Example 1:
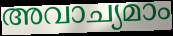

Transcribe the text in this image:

അവാച്യമാം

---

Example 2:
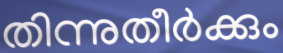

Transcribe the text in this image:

തിന്നുതീർക്കും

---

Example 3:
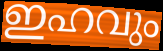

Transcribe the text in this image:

ഇഹവും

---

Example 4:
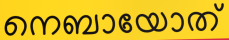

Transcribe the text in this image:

നെബായോത്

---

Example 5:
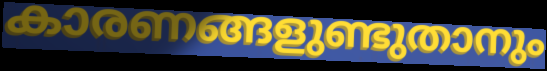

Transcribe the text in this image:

കാരണങ്ങളുണ്ടുതാനും